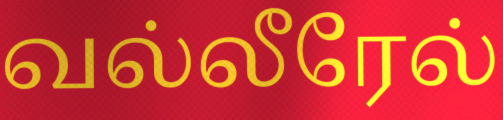
வல்லீரேல்